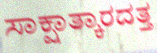
ಸಾಕ್ಷಾತ್ಕಾರದತ್ತ